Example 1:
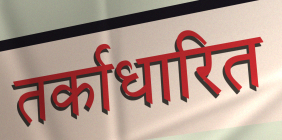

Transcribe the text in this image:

तर्काधारित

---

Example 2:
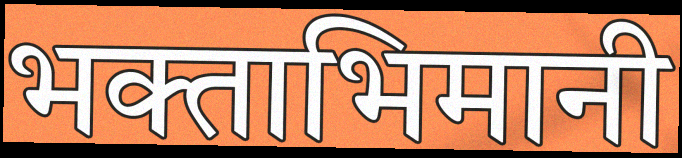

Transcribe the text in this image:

भक्ताभिमानी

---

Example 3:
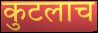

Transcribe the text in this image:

कुटलाच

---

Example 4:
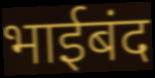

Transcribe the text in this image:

भाईबंद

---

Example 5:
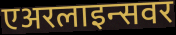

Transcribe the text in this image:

एअरलाइन्सवर